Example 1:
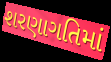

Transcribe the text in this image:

શરણાગતિમાં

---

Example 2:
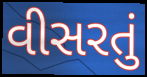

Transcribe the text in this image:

વીસરતું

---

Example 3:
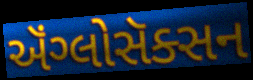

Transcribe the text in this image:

ઍંગ્લોસૅક્સન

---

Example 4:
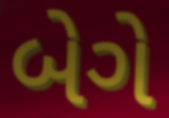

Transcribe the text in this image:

બેગે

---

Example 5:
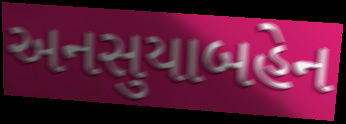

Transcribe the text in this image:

અનસુયાબહેન